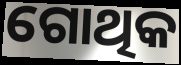
ଗୋଥିକ